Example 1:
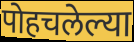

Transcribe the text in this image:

पोहचलेल्या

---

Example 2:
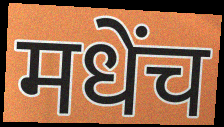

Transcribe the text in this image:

मधेंच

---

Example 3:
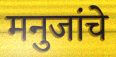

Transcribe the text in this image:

मनुजांचे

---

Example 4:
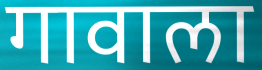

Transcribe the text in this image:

गावाला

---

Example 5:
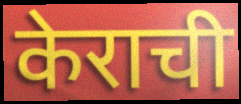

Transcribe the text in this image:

केराची